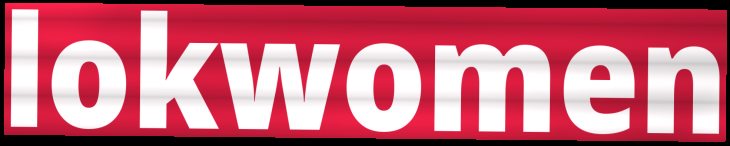
lokwomen